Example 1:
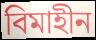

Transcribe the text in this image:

বিমাহীন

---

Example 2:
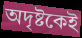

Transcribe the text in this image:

অদৃষ্টকেই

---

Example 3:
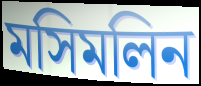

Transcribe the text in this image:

মসিমলিন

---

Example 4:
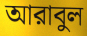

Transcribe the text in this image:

আরাবুল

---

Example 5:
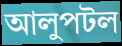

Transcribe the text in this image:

আলুপটল